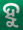
ହୁ